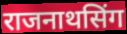
राजनाथसिंग